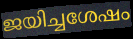
ജയിച്ചശേഷം